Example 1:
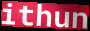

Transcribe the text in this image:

ithun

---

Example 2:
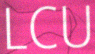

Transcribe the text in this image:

LCU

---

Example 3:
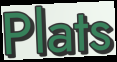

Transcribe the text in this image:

Plats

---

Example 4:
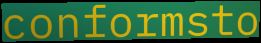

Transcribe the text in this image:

conformsto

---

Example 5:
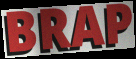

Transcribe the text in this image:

BRAP